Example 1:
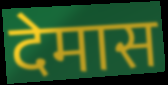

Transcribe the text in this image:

देमास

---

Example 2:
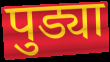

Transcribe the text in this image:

पुड्या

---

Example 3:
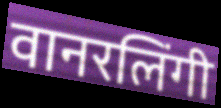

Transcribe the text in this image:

वानरलिंगी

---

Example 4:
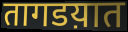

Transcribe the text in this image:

तागडय़ात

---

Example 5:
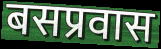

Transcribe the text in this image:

बसप्रवास